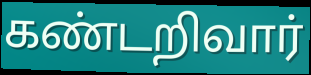
கண்டறிவார்